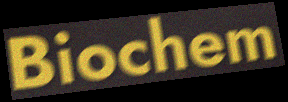
Biochem